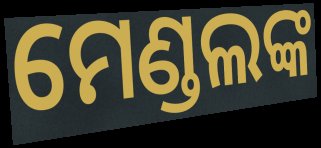
ମେଣ୍ଡଲଙ୍କ